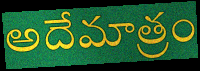
అదేమాత్రం